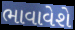
ભાવાવેશે